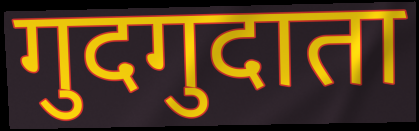
गुदगुदाता